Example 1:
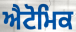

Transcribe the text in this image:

ਐਟੋਮਿਕ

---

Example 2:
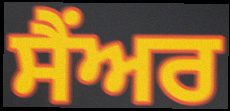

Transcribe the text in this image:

ਸੈਂਅਰ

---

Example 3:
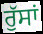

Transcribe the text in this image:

ਰੁੱਸਾਂ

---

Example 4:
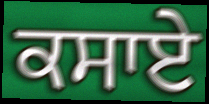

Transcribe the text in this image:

ਕਸਾਏ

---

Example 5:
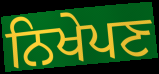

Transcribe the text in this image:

ਨਿਖੇਪਣ